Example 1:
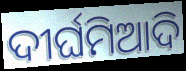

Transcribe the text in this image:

ଦୀର୍ଘମିଆଦି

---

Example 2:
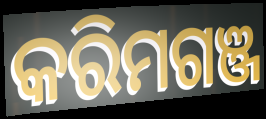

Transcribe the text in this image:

କରିମଗଞ୍ଜ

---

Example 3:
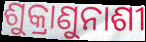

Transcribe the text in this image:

ଶୁକ୍ରାଣୁନାଶୀ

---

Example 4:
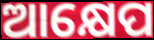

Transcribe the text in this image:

ଆକ୍ଷେପ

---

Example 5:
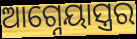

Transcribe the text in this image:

ଆଗ୍ନେୟାସ୍ତ୍ରର